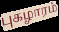
புகழாரம்